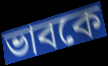
ভাবকে